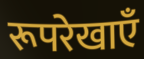
रूपरेखाएँ